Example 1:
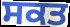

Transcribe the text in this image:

ਸਕਤ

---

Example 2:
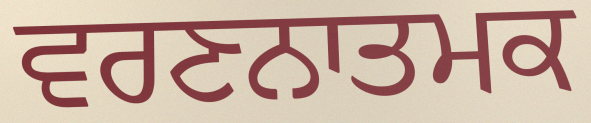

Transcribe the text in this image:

ਵਰਣਨਾਤਮਕ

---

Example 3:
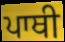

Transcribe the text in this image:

ਪਾਥੀ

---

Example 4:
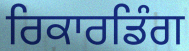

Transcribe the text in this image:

ਰਿਕਾਰਡਿੰਗ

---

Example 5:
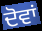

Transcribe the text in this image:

ਦੋਵਾਂ